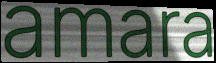
amara